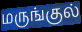
மருங்குல்